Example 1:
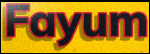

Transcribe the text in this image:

Fayum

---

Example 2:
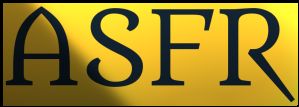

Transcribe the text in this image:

ASFR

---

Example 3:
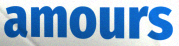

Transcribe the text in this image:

amours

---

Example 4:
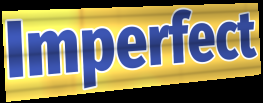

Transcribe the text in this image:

Imperfect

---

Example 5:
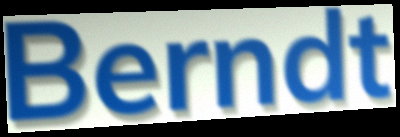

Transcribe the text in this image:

Berndt